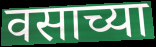
वसाच्या